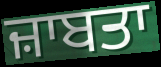
ਜ਼ਾਬਤਾ